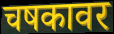
चषकावर